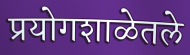
प्रयोगशाळेतले